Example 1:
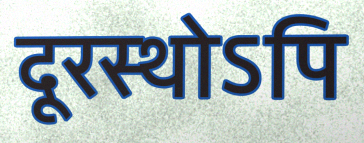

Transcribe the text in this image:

दूरस्थोऽपि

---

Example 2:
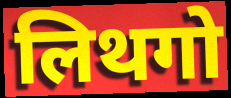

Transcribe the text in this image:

लिथगो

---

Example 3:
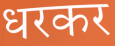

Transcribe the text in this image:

धरकर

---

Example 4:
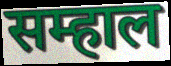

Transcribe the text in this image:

सम्हाल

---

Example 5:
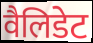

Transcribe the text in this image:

वैलिडेट